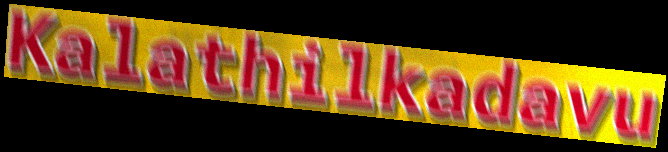
Kalathilkadavu